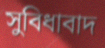
সুবিধাবাদ